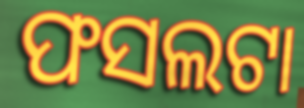
ଫସଲଟା